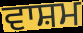
ਵਾਸ਼ਮ